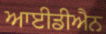
ਆਈਡੀਐਨ